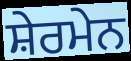
ਸ਼ੇਰਮੇਨ